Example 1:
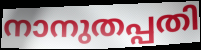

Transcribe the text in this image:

നാനുതപ്പതി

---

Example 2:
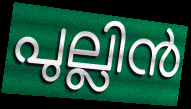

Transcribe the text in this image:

പുല്ലിൻ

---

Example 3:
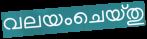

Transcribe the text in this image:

വലയംചെയ്തു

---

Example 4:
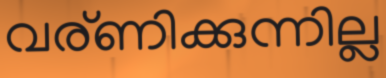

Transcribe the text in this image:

വര്ണിക്കുന്നില്ല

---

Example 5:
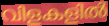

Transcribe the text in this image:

വിളകളിൽ